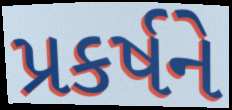
પ્રકર્ષને